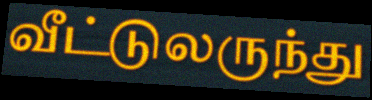
வீட்டுலருந்து